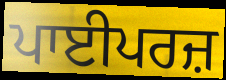
ਪਾਈਪਰਜ਼